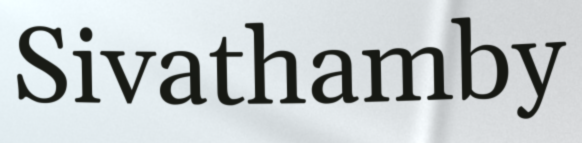
Sivathamby